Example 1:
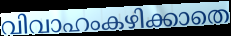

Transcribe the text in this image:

വിവാഹംകഴിക്കാതെ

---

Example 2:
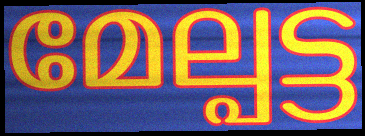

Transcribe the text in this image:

മേല്പട്ട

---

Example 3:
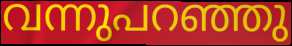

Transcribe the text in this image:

വന്നുപറഞ്ഞു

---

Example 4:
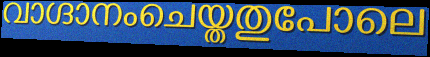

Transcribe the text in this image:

വാഗ്ദാനംചെയ്തതുപോലെ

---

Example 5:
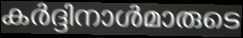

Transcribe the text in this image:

കർദ്ദിനാൾമാരുടെ